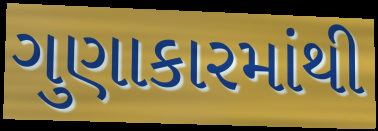
ગુણાકારમાંથી